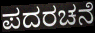
ಪದರಚನೆ